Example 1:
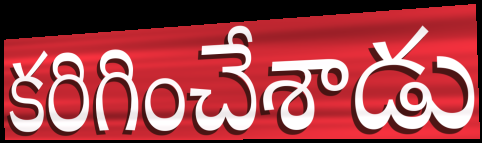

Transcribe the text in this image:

కరిగించేశాడు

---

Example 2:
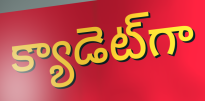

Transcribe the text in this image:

క్యాడెట్‌గా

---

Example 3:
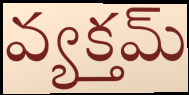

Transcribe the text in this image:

వ్యక్తమ్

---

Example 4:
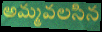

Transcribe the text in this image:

అమ్మవలసిన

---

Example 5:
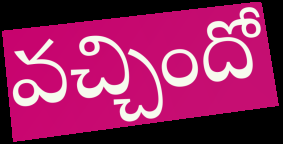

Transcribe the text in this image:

వచ్చిందో